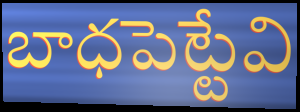
బాధపెట్టేవి